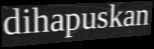
dihapuskan